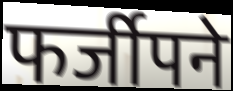
फर्जीपने